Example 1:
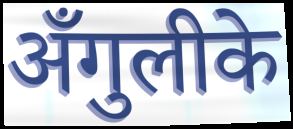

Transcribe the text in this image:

अँगुलीके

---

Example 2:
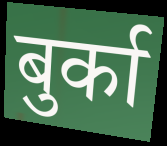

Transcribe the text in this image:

बुर्का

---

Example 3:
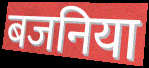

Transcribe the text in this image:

बजनिया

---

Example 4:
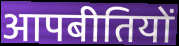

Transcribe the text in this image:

आपबीतियों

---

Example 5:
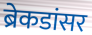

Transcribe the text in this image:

ब्रेकडांसर